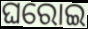
ଘରୋଇ